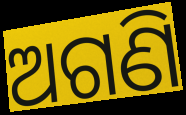
ଅଗଣି